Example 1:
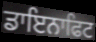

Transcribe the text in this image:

ਡਾਇਨਾਫਿਟ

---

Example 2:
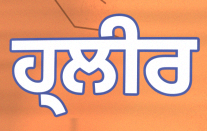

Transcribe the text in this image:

ਹ੍ਲੀਰ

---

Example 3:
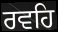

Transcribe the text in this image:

ਰਵਹਿ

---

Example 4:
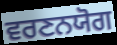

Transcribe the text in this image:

ਵਰਣਨਯੋਗ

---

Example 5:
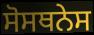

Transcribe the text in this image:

ਸੋਸਥਨੇਸ